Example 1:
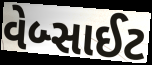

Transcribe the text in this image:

વેબ્સાઈટ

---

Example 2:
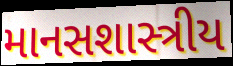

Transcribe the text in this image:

માનસશાસ્ત્રીય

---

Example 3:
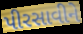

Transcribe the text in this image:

પીરસાવીને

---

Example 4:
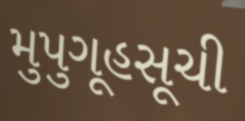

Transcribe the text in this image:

મુપુગૂહસૂચી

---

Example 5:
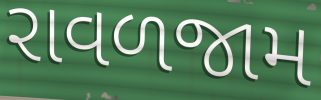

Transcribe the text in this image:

રાવળજામ